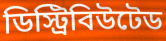
ডিস্ট্রিবিউটেড